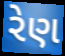
રેણ